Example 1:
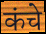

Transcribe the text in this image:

कंचे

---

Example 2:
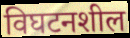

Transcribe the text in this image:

विघटनशील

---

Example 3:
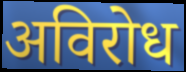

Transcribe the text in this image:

अविरोध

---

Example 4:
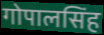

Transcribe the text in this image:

गोपालसिंह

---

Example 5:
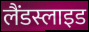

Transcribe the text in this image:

लैंडस्लाइड